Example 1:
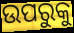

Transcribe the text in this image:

ଉପରୁକୁ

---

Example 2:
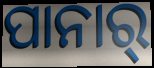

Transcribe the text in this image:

ପାନାର୍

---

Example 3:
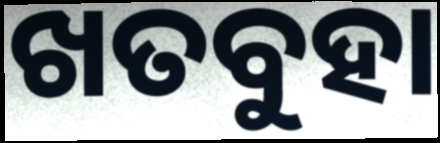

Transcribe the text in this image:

ଖତବୁହା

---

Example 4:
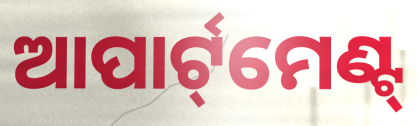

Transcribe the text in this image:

ଆପାର୍ଟ୍‌ମେଣ୍ଟ୍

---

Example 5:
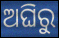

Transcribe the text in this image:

ଅଘିରୁ